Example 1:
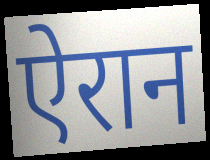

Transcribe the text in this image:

ऐरान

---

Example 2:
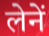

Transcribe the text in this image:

लेनें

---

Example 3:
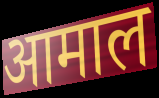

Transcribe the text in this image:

आमाल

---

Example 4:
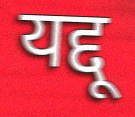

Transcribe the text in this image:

यद्दू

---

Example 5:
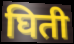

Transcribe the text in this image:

घिती